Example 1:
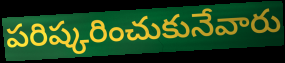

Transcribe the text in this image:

పరిష్కరించుకునేవారు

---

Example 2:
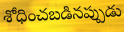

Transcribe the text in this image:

శోధించబడినప్పుడు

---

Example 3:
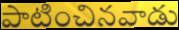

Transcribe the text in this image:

పాటించినవాడు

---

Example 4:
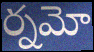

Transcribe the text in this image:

ర్నమో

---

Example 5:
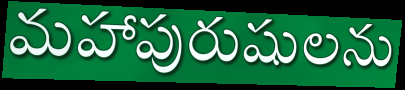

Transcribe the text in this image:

మహాపురుషులను